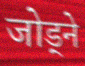
जोड्ने